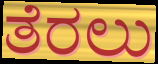
ತೆರಲು